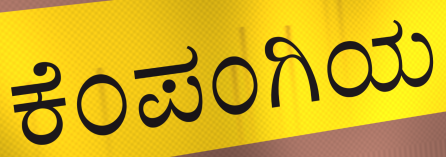
ಕೆಂಪಂಗಿಯ